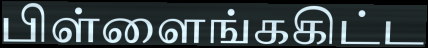
பிள்ளைங்ககிட்ட